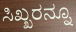
ಸಿಖ್ಖರನ್ನೂ